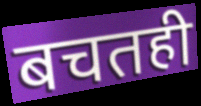
बचतही